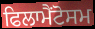
ਫਿਲਾਮੈਂਟੋਸਮ